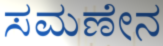
ಸಮಣೇನ